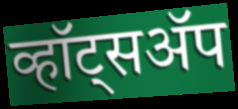
व्हॉट्सॲप